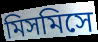
মিসমিসে